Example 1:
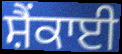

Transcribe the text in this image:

ਸ਼ੈਂਕਾਈ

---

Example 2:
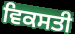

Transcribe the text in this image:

ਵਿਕਸਤੀ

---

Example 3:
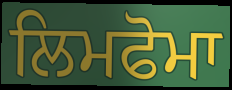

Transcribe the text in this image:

ਲਿਮਫੋਮਾ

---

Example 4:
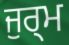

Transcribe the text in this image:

ਜੁਰ੍ਮ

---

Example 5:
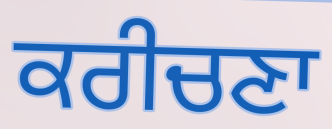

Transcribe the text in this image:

ਕਰੀਚਣਾ